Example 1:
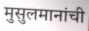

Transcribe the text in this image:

मुसुलमानांची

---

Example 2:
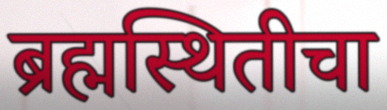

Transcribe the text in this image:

ब्रह्मस्थितीचा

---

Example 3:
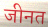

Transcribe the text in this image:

जीनत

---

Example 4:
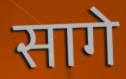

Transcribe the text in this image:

सागे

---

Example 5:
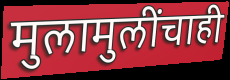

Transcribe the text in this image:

मुलामुलींचाही